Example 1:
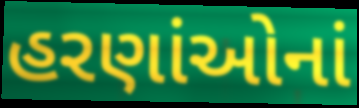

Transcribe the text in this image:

હરણાંઓનાં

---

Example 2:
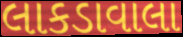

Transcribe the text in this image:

લાકડાવાલા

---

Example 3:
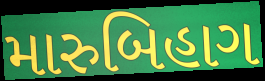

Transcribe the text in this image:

મારુબિહાગ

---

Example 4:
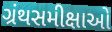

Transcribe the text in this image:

ગ્રંથસમીક્ષાઓ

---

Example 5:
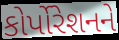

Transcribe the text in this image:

કોર્પોરેશનને